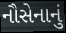
નૌસેનાનું